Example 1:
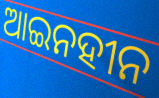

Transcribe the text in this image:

ଆଇନହୀନ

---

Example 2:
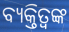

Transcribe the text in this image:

ବ୍ୟକ୍ତିତ୍ବଙ୍କ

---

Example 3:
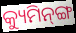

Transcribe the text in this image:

କ୍ୟୁମିନ୍‌ଙ୍ଗ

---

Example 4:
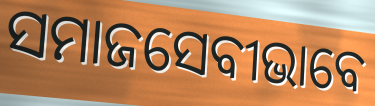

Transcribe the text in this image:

ସମାଜସେବୀଭାବେ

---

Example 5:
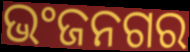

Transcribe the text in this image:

ଭଂଜନଗର